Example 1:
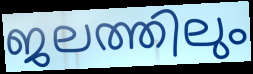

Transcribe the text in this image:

ജലത്തിലും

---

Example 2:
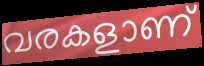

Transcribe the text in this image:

വരകളാണ്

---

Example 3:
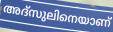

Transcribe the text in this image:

അദ്സുലിനെയാണ്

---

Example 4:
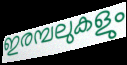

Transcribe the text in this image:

ഇരമ്പലുകളും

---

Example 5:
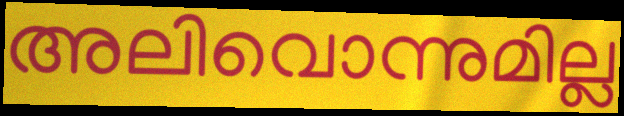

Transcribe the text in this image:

അലിവൊന്നുമില്ല